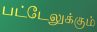
பட்டேலுக்கும்